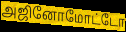
அஜினோமோட்டோ